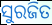
ସୁରଜିତ